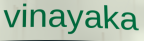
vinayaka